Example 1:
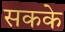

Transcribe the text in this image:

सकके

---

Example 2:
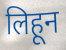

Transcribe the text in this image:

लिहून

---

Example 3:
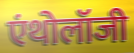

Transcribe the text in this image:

एंथोलॉजी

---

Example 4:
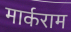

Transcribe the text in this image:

मार्कराम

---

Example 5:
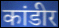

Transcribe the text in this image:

कांडीर